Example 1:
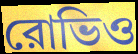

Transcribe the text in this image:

রোভিও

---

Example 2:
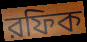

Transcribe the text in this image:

রফিক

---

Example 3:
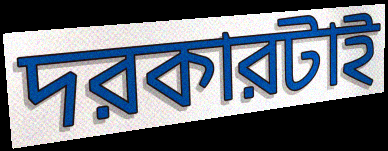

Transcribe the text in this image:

দরকারটাই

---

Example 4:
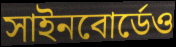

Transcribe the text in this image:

সাইনবোর্ডেও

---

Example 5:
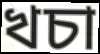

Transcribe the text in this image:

খচা